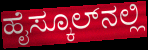
ಹೈಸ್ಕೂಲ್‌ನಲ್ಲಿ